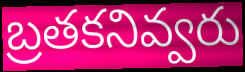
బ్రతకనివ్వరు